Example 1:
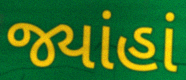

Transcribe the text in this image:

જ્યાંહાં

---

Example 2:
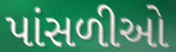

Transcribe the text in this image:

પાંસળીઓ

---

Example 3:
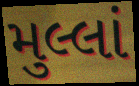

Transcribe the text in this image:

મુલ્લાં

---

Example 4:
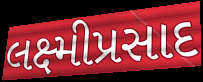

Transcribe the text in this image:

લક્ષ્મીપ્રસાદ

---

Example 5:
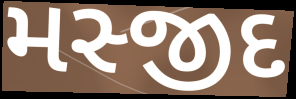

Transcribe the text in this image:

મસ્જીદ